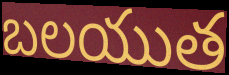
బలయుత